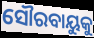
ସୌରବାୟୁକୁ